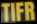
TIFR